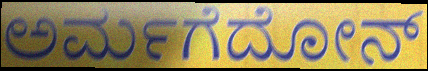
ಅರ್ಮಗೆದೋನ್